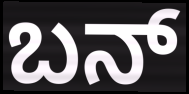
ಬನ್